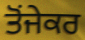
ਤੋਂਜੇਕਰ